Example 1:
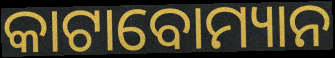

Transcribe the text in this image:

କାଟାବୋମ୍ୟାନ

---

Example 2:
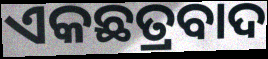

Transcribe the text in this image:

ଏକଛତ୍ରବାଦ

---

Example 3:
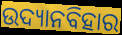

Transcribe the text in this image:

ଉଦ୍ୟାନବିହାର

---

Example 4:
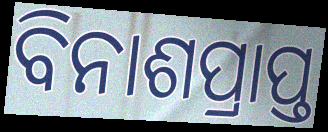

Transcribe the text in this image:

ବିନାଶପ୍ରାପ୍ତ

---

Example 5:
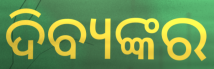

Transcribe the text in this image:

ଦିବ୍ୟଙ୍କର